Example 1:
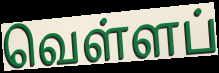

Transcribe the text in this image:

வெள்ளப்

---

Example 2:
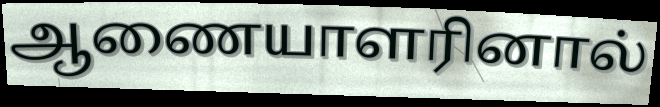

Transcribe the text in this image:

ஆணையாளரினால்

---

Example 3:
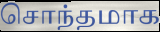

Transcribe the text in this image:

சொந்தமாக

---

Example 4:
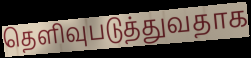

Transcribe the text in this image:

தெளிவுபடுத்துவதாக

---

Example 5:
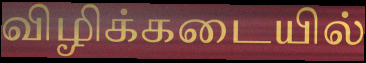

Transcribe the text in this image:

விழிக்கடையில்